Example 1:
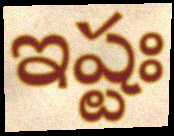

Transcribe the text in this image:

ఇష్టః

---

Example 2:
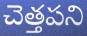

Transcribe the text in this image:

చెత్తపని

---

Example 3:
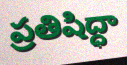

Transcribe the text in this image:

ప్రతిషిద్ధా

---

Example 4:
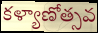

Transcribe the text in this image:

కళ్యాణోత్సవ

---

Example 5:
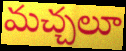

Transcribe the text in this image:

మచ్చలూ